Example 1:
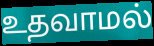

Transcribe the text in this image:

உதவாமல்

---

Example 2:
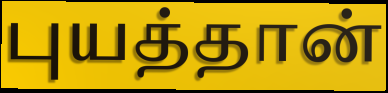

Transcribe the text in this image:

புயத்தான்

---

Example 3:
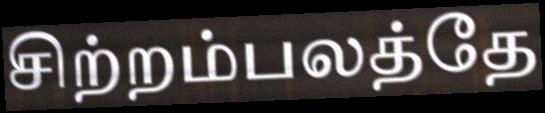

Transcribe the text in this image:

சிற்றம்பலத்தே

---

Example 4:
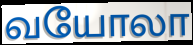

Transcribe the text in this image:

வயோலா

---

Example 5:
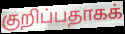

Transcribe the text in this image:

குறிப்பதாகக்